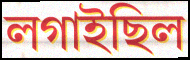
লগাইছিল